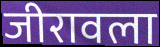
जीरावला